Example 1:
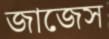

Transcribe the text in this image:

জাজেস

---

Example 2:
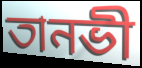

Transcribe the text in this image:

তানভী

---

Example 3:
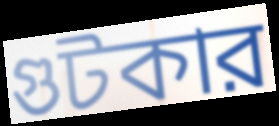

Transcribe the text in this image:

গুটকার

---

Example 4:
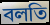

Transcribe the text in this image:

বলতি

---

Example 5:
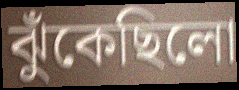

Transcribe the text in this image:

ঝুঁকেছিলো